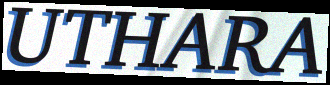
UTHARA